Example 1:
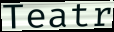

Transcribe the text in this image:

Teatr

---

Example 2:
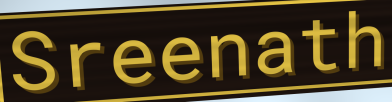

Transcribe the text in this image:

Sreenath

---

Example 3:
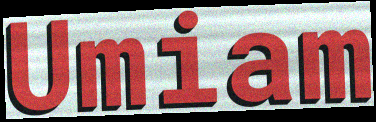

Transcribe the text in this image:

Umiam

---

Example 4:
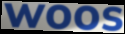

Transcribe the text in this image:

woos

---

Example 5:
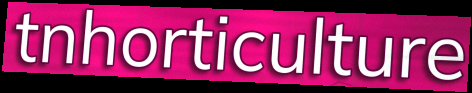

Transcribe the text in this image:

tnhorticulture